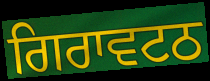
ਗਿਰਾਵਟਠ